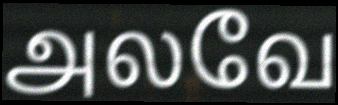
அலவே